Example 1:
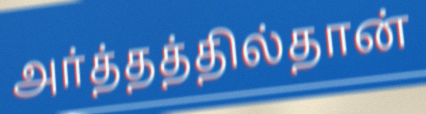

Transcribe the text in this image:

அர்த்தத்தில்தான்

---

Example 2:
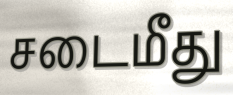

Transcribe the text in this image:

சடைமீது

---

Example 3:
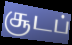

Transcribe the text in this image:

சூடப்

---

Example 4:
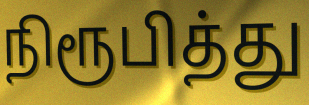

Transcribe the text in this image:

நிரூபித்து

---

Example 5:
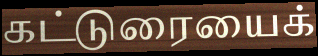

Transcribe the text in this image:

கட்டுரையைக்